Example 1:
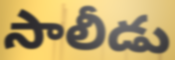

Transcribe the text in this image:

సాలీడు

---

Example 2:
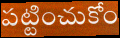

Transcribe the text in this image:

పట్టించుకోం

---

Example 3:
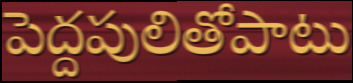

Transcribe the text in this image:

పెద్దపులితోపాటు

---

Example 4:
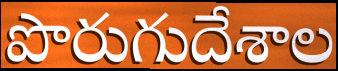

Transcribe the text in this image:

పొరుగుదేశాల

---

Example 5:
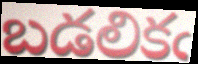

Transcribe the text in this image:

బడలికఁ